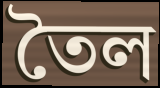
তৈল